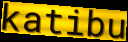
katibu